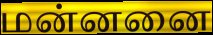
மன்னனை